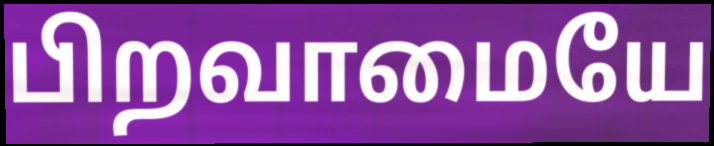
பிறவாமையே